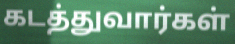
கடத்துவார்கள்